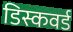
डिस्कवर्ड